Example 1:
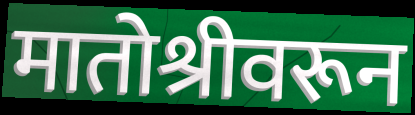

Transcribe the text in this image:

मातोश्रीवरून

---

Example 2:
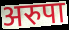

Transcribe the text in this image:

अरुपा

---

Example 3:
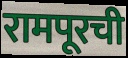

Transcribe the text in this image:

रामपूरची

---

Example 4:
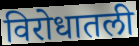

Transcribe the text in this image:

विरोधातली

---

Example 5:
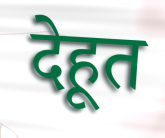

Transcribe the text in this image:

देहूत